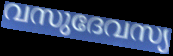
വസുദേവസ്യ